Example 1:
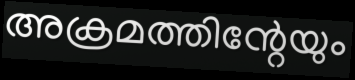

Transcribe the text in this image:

അക്രമത്തിന്റേയും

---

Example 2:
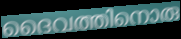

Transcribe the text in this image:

ദൈവത്തിനൊരു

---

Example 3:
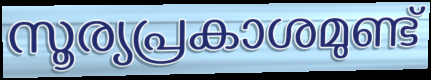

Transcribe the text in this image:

സൂര്യപ്രകാശമുണ്ട്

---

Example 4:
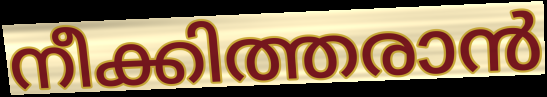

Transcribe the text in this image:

നീക്കിത്തരാൻ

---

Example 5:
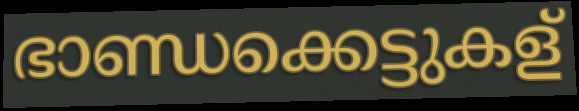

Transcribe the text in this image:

ഭാണ്ഡക്കെട്ടുകള്